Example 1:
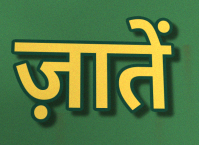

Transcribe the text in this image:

ज़ातें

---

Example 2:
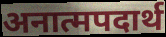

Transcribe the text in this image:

अनात्मपदार्थ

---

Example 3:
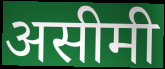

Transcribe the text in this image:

असीमी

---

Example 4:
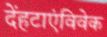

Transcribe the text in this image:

देंहटाएंविवेक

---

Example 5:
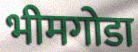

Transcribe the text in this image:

भीमगोडा